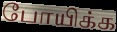
போயிக்க